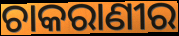
ଚାକରାଣୀର